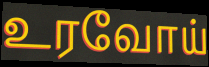
உரவோய்